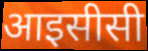
आइसीसी